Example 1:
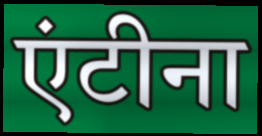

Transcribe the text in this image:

एंटीना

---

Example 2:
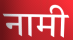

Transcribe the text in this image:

नामी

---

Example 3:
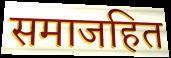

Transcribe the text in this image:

समाजहित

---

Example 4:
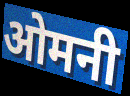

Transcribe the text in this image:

ओमनी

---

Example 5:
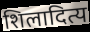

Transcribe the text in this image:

शिलादित्य